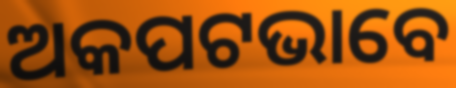
ଅକପଟଭାବେ